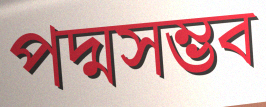
পদ্মসম্ভব